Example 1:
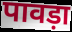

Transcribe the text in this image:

पावड़ा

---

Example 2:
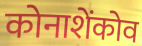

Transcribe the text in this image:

कोनाशेंकोव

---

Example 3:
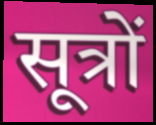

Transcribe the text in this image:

सूत्रों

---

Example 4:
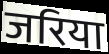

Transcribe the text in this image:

जरिया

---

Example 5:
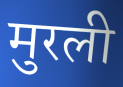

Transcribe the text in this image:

मुरली